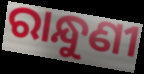
ରାନ୍ଧୁଣୀ